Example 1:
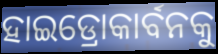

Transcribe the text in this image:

ହାଇଡ୍ରୋକାର୍ବନକୁ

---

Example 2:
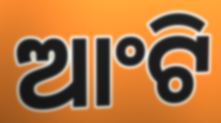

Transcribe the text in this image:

ଆଂଟି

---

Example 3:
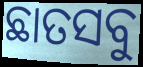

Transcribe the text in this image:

ଛାତସବୁ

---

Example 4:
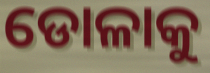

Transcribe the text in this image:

ଡୋଳାକୁ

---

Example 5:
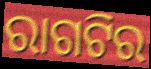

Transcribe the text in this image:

ରାଗଟିର